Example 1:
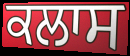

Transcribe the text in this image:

ਕਲਾਸ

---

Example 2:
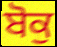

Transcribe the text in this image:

ਬੋਕੁ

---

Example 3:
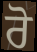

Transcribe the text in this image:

ਰੋ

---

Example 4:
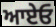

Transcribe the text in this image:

ਆਏਓ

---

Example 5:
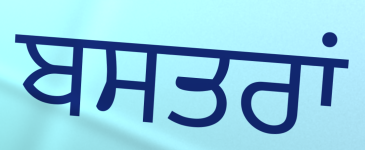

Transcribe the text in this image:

ਬਸਤਰਾਂ